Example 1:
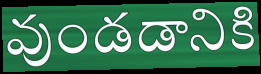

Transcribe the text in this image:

వుండడానికి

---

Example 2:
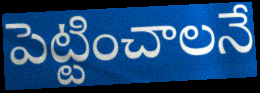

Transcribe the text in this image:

పెట్టించాలనే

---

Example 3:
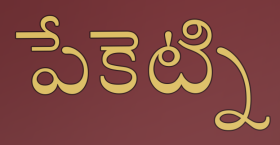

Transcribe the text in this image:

పేకెట్ని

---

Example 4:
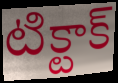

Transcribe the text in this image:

టిక్టాక్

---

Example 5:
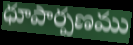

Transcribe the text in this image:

ధూపార్పణము